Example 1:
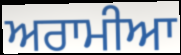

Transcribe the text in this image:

ਅਰਾਮੀਆ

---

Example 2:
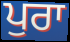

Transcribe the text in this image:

ਪੁਰਾ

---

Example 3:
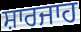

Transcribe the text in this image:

ਸ਼ਾਰਜਾਹ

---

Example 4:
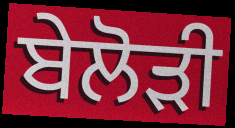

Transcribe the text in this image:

ਬੇਲੋੜੀ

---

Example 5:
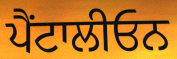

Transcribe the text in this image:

ਪੈਂਟਾਲੀਓਨ